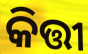
କିତ୍ତୀ